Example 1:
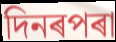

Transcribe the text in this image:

দিনৰপৰা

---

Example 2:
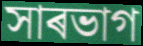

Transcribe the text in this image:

সাৰভাগ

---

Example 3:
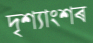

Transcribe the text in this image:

দৃশ্যাংশৰ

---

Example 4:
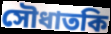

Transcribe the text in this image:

সৌধাতকি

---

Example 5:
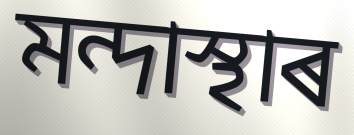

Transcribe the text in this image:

মন্দাস্থাৰ